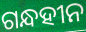
ଗନ୍ଧହୀନ